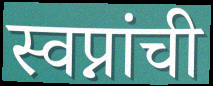
स्वप्नांची